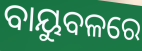
ବାୟୁବଳରେ